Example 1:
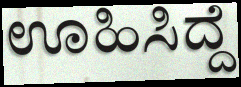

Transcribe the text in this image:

ಊಹಿಸಿದ್ದೆ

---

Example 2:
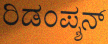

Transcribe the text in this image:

ರಿಡಂಪ್ಶನ್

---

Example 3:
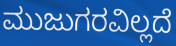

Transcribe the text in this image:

ಮುಜುಗರವಿಲ್ಲದೆ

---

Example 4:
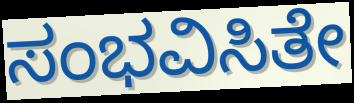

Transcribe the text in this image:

ಸಂಭವಿಸಿತೇ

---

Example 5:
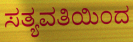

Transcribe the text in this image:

ಸತ್ಯವತಿಯಿಂದ